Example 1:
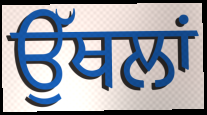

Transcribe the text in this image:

ਉੱਥਲਾਂ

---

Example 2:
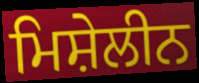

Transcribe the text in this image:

ਮਿਸ਼ੇਲੀਨ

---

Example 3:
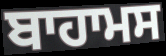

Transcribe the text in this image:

ਬਾਹਾਮਸ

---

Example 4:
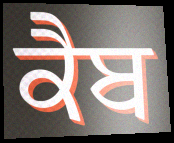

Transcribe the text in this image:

ਕੈਬ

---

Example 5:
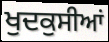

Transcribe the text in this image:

ਖੁਦਕੁਸੀਆਂ